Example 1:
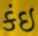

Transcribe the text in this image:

કંઇ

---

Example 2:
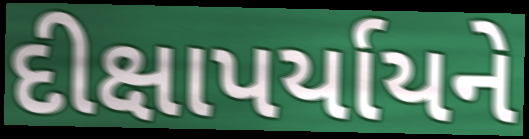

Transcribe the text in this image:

દીક્ષાપર્યાયને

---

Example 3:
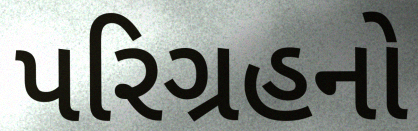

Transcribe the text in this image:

પરિગ્રહનો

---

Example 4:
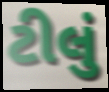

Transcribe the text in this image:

ટીલું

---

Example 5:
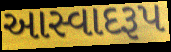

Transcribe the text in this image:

આસ્વાદરૂપ